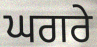
ਘਗਰੇ